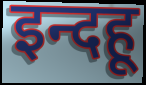
इन्दहू